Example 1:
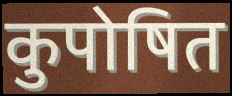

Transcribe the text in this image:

कुपोषित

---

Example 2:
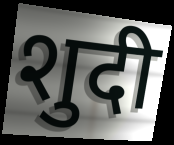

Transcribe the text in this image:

शुदी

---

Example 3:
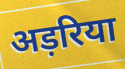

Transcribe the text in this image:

अड़रिया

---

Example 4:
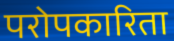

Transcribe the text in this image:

परोपकारिता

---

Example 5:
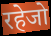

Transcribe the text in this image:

रहेजो